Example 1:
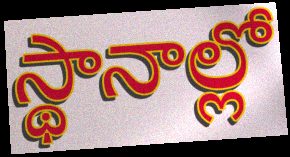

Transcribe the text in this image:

స్థానాల్లో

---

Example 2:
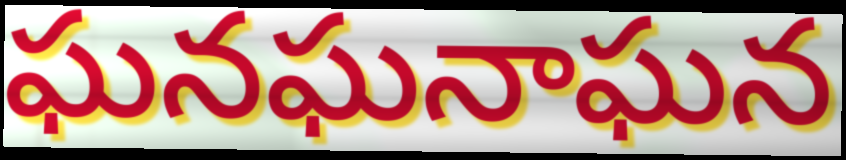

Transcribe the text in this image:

ఘనఘనాఘన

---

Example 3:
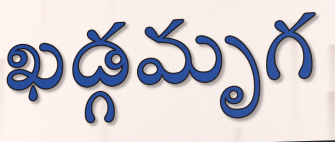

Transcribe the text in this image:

ఖడ్గమృగ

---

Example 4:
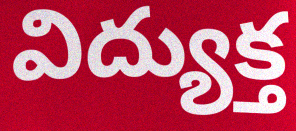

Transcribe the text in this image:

విద్యుక్త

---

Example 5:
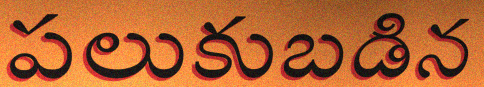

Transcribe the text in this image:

పలుకుబడిన